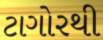
ટાગોરથી